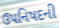
ઉપનિષદની